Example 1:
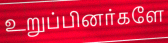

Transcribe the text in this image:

உறுப்பினர்களே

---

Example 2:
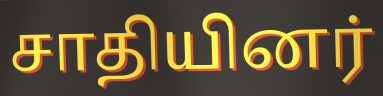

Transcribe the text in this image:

சாதியினர்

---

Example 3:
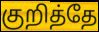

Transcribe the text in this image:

குறித்தே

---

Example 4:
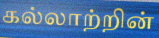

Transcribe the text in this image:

கல்லாற்றின்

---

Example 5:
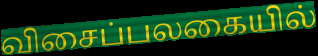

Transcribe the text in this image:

விசைப்பலகையில்